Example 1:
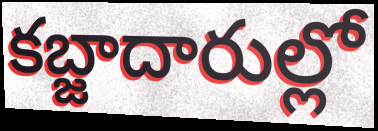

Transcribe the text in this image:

కబ్జాదారుల్లో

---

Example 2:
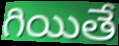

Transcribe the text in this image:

గియితే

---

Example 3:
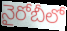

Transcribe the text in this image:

నైరోబీలో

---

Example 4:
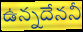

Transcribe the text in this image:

ఉన్నదేననీ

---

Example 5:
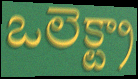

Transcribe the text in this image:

ఒలెక్ట్రా